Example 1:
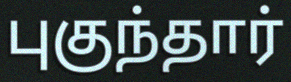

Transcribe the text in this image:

புகுந்தார்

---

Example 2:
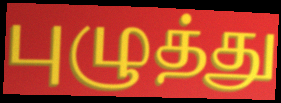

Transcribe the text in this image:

புழுத்து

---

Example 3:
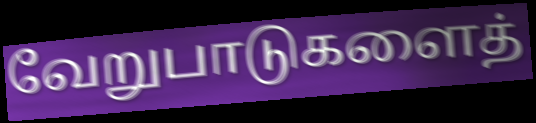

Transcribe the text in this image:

வேறுபாடுகளைத்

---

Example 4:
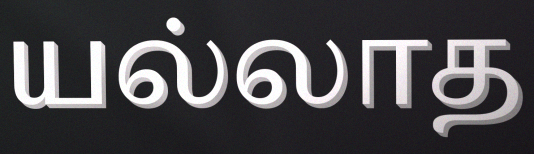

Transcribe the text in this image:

யல்லாத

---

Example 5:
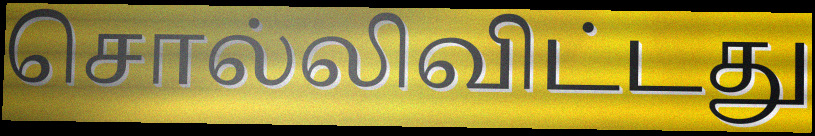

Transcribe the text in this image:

சொல்லிவிட்டது